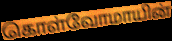
கொள்வோமாயின்